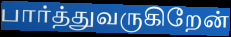
பார்த்துவருகிறேன்